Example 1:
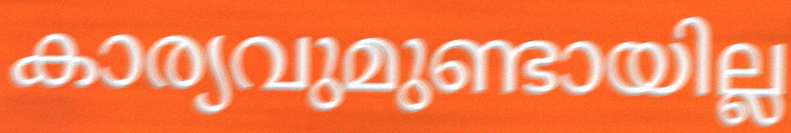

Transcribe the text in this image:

കാര്യവുമുണ്ടായില്ല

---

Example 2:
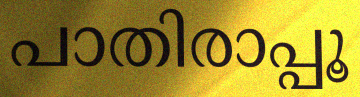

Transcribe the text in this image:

പാതിരാപ്പൂ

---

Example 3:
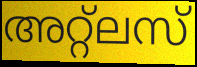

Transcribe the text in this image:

അറ്റ്ലസ്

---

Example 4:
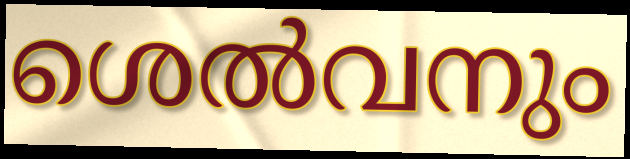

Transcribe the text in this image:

ശെൽവനും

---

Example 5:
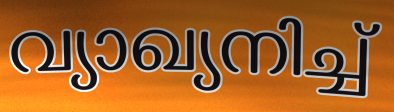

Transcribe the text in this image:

വ്യാഖ്യനിച്ച്